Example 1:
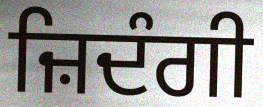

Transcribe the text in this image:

ਜ਼ਿਦੰਗੀ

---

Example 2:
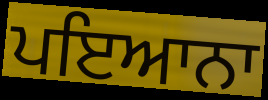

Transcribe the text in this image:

ਪਇਆਨਾ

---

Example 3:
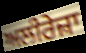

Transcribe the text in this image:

ਅਲੀਰੇਜ਼ਾ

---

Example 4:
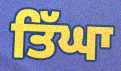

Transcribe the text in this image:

ਤਿੱਘਾ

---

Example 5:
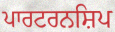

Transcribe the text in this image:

ਪਾਰਟਰਨਸ਼ਿਪ